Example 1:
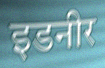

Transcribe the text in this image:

इडनीर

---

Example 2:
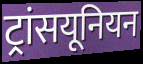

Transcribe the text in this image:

ट्रांसयूनियन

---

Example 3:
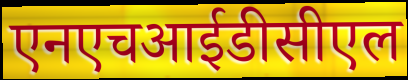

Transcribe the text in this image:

एनएचआईडीसीएल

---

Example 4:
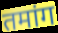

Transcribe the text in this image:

तमांग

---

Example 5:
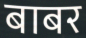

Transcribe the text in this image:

बाबर